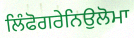
ਲਿੰਫੋਗਰੇਨਿਉਲੋਮਾ